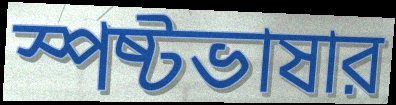
স্পষ্টভাষার